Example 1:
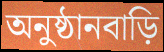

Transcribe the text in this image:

অনুষ্ঠানবাড়ি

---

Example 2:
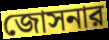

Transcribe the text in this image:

জোসনার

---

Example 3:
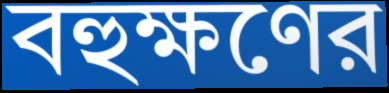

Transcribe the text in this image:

বহুক্ষণের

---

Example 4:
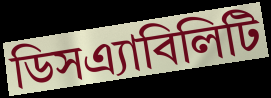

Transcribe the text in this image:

ডিসএ্যাবিলিটি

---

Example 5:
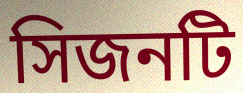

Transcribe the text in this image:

সিজনটি